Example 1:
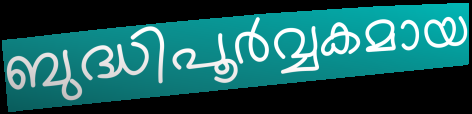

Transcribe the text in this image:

ബുദ്ധിപൂർവ്വകമായ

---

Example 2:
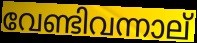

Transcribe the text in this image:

വേണ്ടിവന്നാല്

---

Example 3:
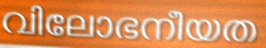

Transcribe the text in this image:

വിലോഭനീയത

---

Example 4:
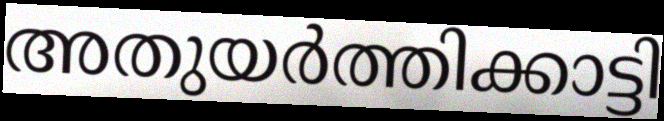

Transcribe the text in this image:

അതുയർത്തിക്കാട്ടി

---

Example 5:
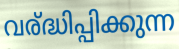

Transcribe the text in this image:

വര്ദ്ധിപ്പിക്കുന്ന